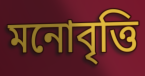
মনোবৃত্তি